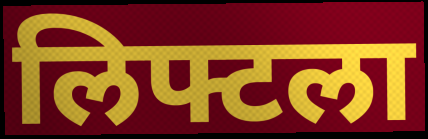
लिफ्टला